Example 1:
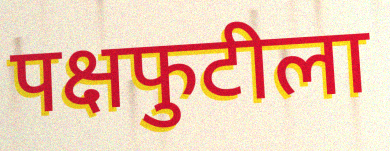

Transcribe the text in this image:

पक्षफुटीला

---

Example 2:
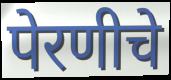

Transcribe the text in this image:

पेरणीचे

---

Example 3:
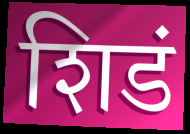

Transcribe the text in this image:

शिडं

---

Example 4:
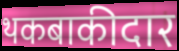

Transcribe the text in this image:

थकबाकीदार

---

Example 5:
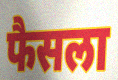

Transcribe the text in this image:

फैसला